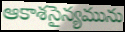
ఆకాశసైన్యమును